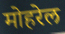
मोहरेल